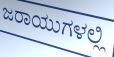
ಜರಾಯುಗಳಲ್ಲಿ